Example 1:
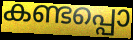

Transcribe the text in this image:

കണ്ടപ്പൊ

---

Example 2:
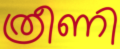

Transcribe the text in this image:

ത്രീണി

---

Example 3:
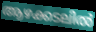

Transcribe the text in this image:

ആഴക്കടലിൽ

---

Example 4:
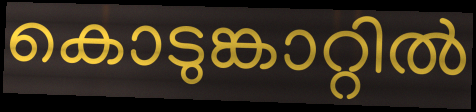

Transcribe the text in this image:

കൊടുങ്കാറ്റിൽ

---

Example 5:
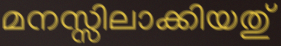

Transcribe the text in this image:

മനസ്സിലാക്കിയതു്